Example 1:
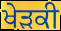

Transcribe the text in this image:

ਖੇੜਕੀ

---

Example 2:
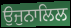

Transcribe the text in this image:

ਉਜੁਨਾਲਿਲ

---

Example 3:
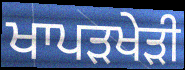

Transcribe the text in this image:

ਖਾਪੜਖੇੜੀ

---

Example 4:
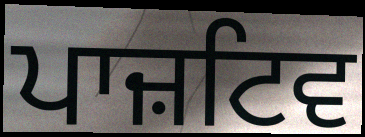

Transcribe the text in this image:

ਪਾਜ਼ਟਿਵ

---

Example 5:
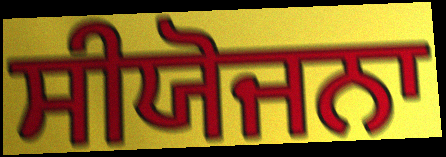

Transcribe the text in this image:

ਸੀਯੋਜਨਾ